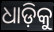
ଧାଡ଼ିକୁ